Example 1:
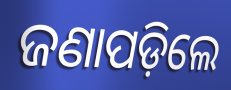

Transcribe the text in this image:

ଜଣାପଡ଼ିଲେ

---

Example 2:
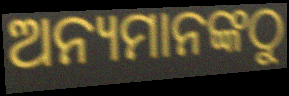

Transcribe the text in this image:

ଅନ୍ୟମାନଙ୍କଠୁ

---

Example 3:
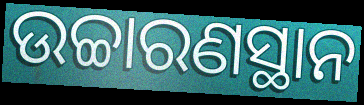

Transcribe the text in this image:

ଉଚ୍ଚାରଣସ୍ଥାନ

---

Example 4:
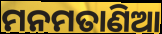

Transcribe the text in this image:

ମନମତାଣିଆ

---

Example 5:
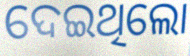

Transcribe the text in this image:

ଦେଇଥିଲୋ